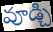
వూడ్చి